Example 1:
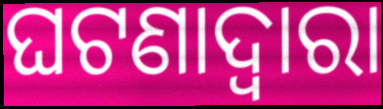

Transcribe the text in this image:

ଘଟଣାଦ୍ୱାରା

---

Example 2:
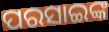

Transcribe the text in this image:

ପରସାଇଙ୍କ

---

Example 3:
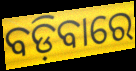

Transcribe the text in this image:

ବଡ଼ିବାରେ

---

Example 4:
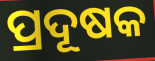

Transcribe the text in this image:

ପ୍ରଦୂଷକ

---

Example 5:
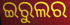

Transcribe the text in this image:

ଇରୁଲର